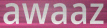
awaaz